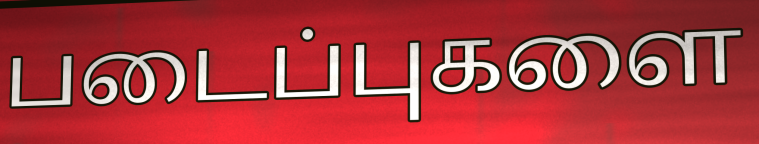
படைப்புகளை